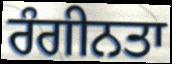
ਰੰਗੀਨਤਾ